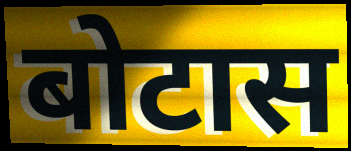
बोटास